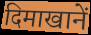
दिमाखानें